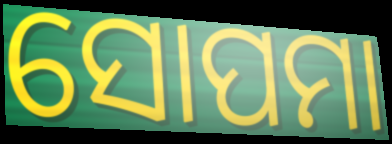
ସୋପମା